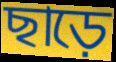
ছাড়ে